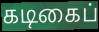
கடிகைப்